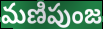
మణిపుంజ